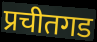
प्रचीतगड